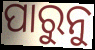
ପାରୁନୁ